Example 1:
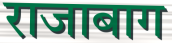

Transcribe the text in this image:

राजाबाग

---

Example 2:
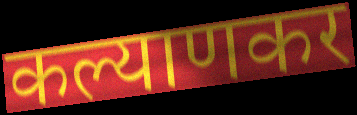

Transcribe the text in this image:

कल्याणकर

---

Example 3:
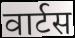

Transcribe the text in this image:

वार्टस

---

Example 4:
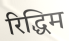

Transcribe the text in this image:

रिद्धिम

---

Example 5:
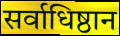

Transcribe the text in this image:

सर्वाधिष्ठान